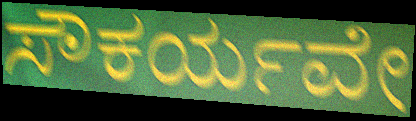
ಸೌಕರ್ಯವೇ